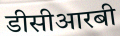
डीसीआरबी